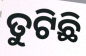
ତୁଟିଛି